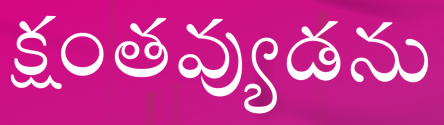
క్షంతవ్యుడను